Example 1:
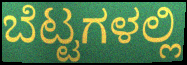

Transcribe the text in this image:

ಬೆಟ್ಟಗಳಲ್ಲಿ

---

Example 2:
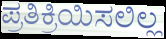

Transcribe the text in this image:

ಪ್ರತಿಕ್ರಿಯಿಸಲಿಲ್ಲ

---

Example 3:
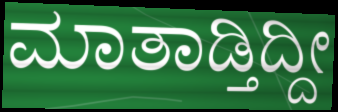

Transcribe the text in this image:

ಮಾತಾಡ್ತಿದ್ದೀ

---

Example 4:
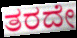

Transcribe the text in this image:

ತರದೇ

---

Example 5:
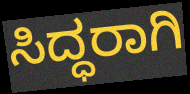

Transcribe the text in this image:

ಸಿದ್ಧರಾಗಿ